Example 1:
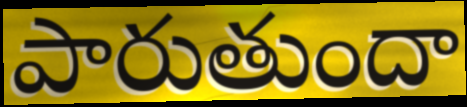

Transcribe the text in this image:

పారుతుందా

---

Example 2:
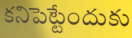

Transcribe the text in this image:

కనిపెట్టేందుకు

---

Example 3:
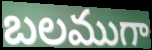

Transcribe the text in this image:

బలముగా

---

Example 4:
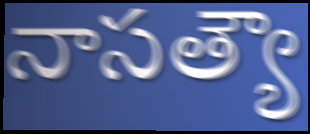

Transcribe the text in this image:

నాసత్యౌ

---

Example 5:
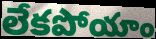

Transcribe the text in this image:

లేకపోయాం